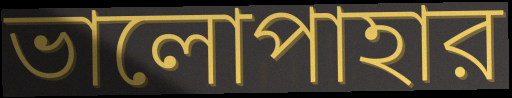
ভালোপাহার